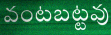
వంటబట్టవు